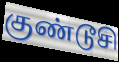
குண்டூசி